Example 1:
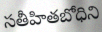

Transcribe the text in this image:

సతీహితబోధిని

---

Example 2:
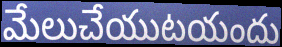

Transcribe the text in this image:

మేలుచేయుటయందు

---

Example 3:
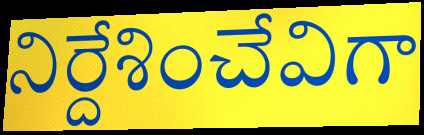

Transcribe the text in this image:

నిర్దేశించేవిగా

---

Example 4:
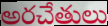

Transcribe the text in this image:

అరచేతులు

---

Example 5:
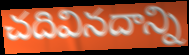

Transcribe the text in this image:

చదివినదాన్ని